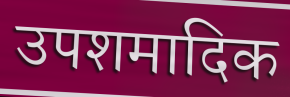
उपशमादिक